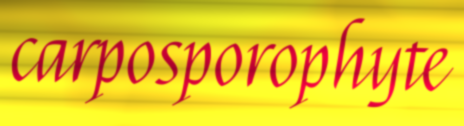
carposporophyte